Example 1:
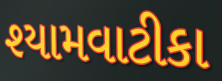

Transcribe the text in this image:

શ્યામવાટીકા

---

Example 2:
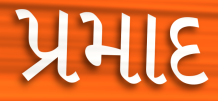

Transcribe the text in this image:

પ્રમાદ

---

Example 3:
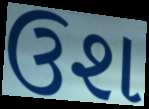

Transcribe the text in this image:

ઉશ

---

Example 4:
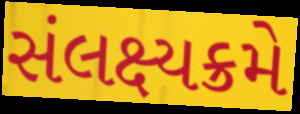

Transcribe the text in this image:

સંલક્ષ્યક્રમે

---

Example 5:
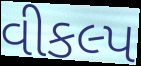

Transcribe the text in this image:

વીકલ્પ